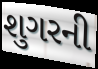
શુગરની